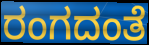
ರಂಗದಂತೆ